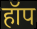
हॉप